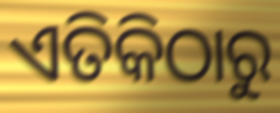
ଏତିକିଠାରୁ